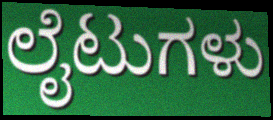
ಲೈಟುಗಳು